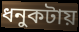
ধনুকটায়